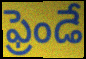
ఫ్రెండే